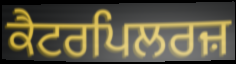
ਕੈਟਰਪਿਲਰਜ਼